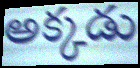
అక్కడు